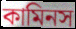
কামিনস